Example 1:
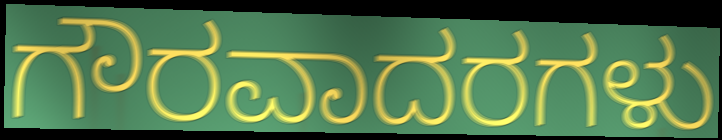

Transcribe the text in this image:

ಗೌರವಾದರಗಳು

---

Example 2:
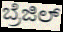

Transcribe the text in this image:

ಬ್ರೆಜಿಲ್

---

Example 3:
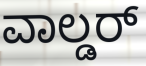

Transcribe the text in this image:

ವಾಲ್ಡರ್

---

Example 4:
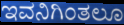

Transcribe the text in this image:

ಇವನಿಗಿಂತಲೂ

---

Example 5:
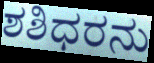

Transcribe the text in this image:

ಶಶಿಧರನು